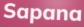
Sapana